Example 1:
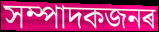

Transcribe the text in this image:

সম্পাদকজনৰ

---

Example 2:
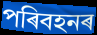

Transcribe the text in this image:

পৰিবহনৰ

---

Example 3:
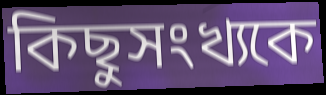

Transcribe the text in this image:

কিছুসংখ্যকে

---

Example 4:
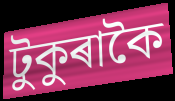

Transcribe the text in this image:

টুকুৰাকৈ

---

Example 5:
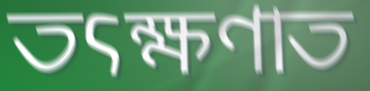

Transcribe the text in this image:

তৎক্ষণাত